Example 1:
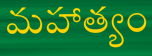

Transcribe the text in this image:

మహాత్యం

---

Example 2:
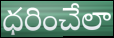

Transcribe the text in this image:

ధరించేలా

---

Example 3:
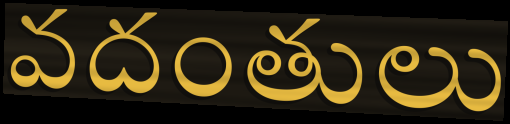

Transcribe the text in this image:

వదంతులు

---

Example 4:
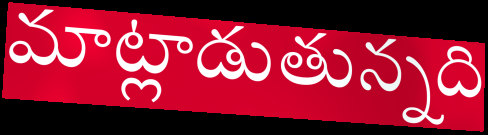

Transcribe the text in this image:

మాట్లాడుతున్నది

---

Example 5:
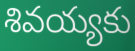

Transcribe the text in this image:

శివయ్యకు